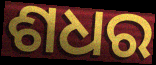
ଶଧର